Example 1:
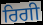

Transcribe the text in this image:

ਰਿਗੀ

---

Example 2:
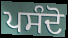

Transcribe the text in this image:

ਪਸੰਦੋ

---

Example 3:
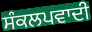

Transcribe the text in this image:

ਸੰਕਲਪਵਾਦੀ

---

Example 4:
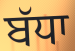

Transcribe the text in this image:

ਬੱਧਾ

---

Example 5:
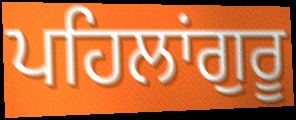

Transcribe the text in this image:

ਪਹਿਲਾਂਗੁਰੂ